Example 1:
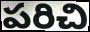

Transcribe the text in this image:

పరిచి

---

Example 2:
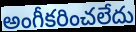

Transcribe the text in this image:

అంగీకరించలేదు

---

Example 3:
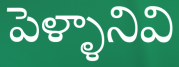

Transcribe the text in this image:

పెళ్ళానివి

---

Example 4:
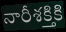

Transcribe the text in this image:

నారీశక్తికి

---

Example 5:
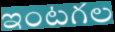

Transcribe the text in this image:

ఇంటగల